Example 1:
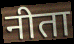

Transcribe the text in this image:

नीता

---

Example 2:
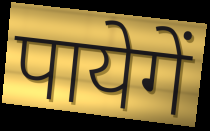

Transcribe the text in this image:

पायेगें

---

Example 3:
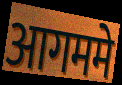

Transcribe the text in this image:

आगममे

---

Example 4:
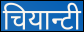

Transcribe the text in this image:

चियान्टी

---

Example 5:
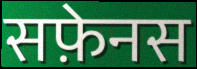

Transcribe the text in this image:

सफ़ेनस